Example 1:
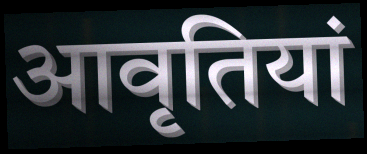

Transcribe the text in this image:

आवृतियां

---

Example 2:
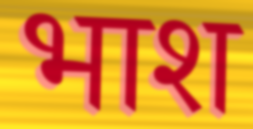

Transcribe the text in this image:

भाश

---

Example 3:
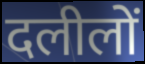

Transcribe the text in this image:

दलीलों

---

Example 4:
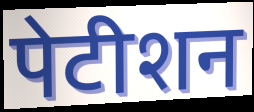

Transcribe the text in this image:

पेटीशन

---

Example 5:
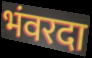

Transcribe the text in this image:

भंवरदा